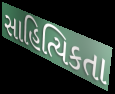
સાહિત્યિકતા